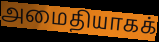
அமைதியாகக்